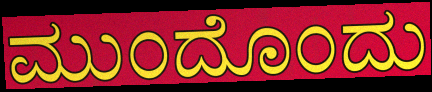
ಮುಂದೊಂದು